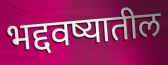
भद्दवष्यातील